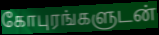
கோபுரங்களுடன்